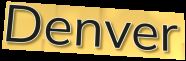
Denver